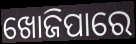
ଖୋଜିପାରେ